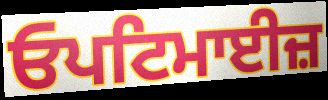
ਓਪਟਿਮਾਈਜ਼